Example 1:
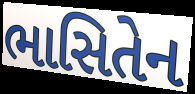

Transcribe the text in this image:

ભાસિતેન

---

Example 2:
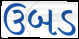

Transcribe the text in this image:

ઉબડ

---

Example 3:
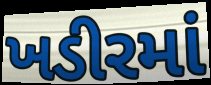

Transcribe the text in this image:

ખડીરમાં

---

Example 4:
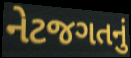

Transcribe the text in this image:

નેટજગતનું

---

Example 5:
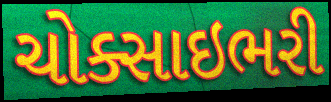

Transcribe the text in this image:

ચોક્સાઇભરી